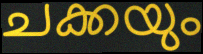
ചക്കയും